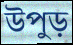
উপুড়